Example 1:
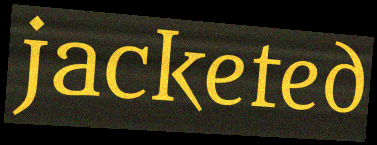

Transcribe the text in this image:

jacketed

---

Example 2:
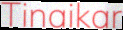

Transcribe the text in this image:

Tinaikar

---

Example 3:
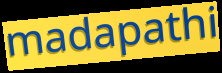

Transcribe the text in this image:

madapathi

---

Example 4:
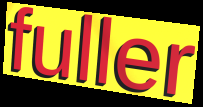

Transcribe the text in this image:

fuller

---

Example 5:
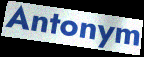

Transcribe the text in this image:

Antonym